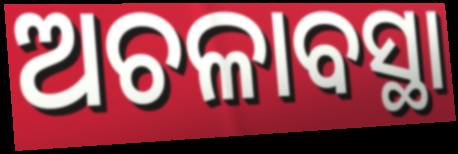
ଅଚଳାବସ୍ଥା